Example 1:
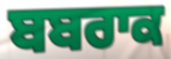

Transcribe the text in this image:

ਬਬਰਾਕ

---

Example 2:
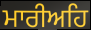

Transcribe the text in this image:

ਮਾਰੀਅਹਿ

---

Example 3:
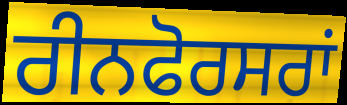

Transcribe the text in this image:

ਰੀਨਫੋਰਸਰਾਂ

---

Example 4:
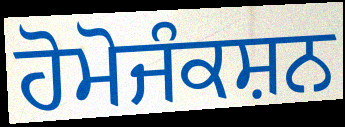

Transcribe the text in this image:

ਹੋਮੋਜੰਕਸ਼ਨ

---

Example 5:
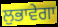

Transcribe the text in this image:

ਲੁਭਾਵੇਗਾ